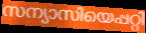
സന്യാസിയെപ്പറ്റി